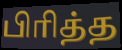
பிரித்த